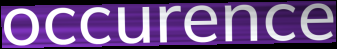
occurence